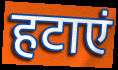
हटाएं